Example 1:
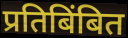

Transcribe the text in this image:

प्रतिबिंबित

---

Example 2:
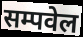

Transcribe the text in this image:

सम्पवेल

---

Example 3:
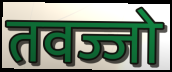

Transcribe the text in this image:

तवज्जो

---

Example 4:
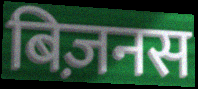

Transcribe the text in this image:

बिज़नस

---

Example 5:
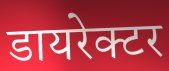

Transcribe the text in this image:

डायरेक्टर